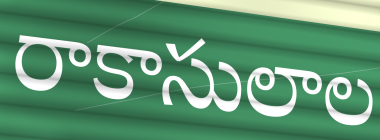
రాకాసులాల